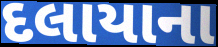
દલાયાના